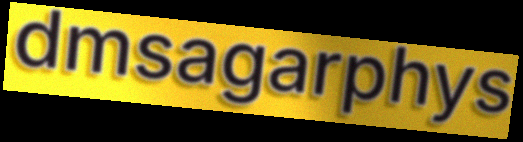
dmsagarphys